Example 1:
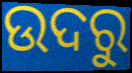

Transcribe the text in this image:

ଉଦରୁ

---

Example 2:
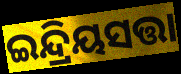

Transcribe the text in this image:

ଇନ୍ଦ୍ରିୟସତ୍ତା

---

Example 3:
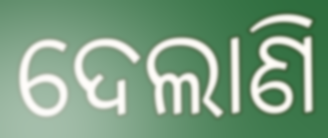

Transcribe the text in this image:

ଦେଲାଣି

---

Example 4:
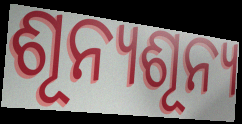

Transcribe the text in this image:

ଶୂନ୍ୟଶୂନ୍ୟ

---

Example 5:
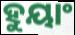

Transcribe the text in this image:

ହୁୟାଂ